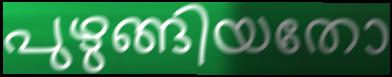
പുഴുങ്ങിയതോ